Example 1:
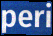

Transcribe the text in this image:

peri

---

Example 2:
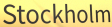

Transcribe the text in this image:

Stockholm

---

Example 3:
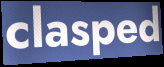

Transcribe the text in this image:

clasped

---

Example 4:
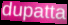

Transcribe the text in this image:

dupatta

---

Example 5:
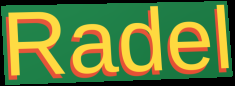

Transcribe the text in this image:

Radel